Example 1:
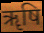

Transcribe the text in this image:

ॠषि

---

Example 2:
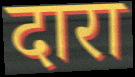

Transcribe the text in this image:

दारा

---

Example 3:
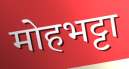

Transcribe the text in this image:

मोहभट्टा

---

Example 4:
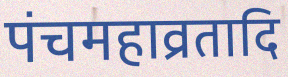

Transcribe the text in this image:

पंचमहाव्रतादि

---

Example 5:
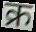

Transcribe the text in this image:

क्र